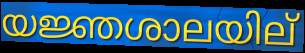
യജ്ഞശാലയില്